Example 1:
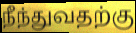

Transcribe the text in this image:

நீந்துவதற்கு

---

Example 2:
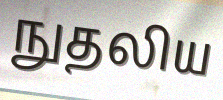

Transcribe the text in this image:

நுதலிய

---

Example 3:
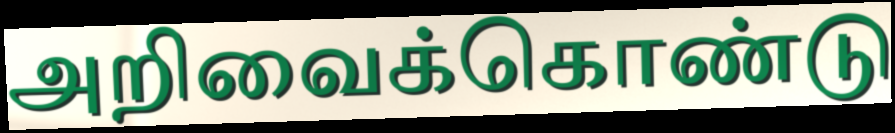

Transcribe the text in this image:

அறிவைக்கொண்டு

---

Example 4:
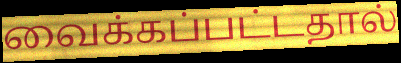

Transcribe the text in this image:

வைக்கப்பட்டதால்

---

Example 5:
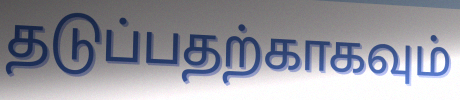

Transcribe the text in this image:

தடுப்பதற்காகவும்